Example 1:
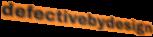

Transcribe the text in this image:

defectivebydesign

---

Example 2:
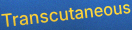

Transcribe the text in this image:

Transcutaneous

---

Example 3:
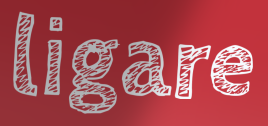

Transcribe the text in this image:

ligare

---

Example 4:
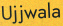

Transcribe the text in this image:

Ujjwala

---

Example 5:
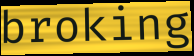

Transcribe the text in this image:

broking